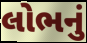
લોભનું